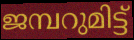
ജമ്പറുമിട്ട്